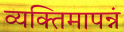
व्यक्तिमापन्नं